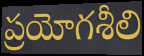
ప్రయోగశీలి